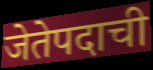
जेतेपदाची